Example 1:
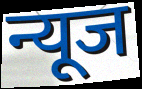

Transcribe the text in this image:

न्यूज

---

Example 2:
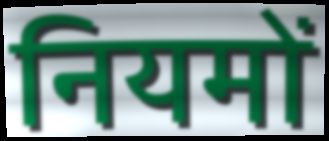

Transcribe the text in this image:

नियमों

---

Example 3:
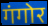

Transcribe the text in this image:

गंगोर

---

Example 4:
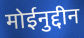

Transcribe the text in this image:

मोईनुद्दीन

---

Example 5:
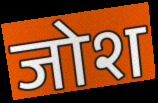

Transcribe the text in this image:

जोश